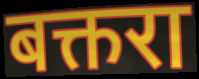
बक्तरा